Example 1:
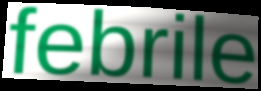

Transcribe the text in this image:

febrile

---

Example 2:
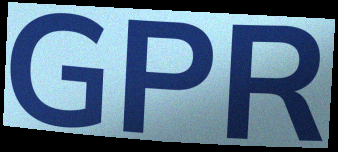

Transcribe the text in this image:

GPR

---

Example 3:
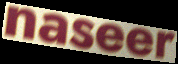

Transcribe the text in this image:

naseer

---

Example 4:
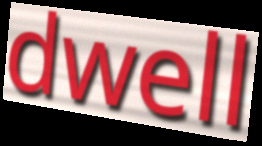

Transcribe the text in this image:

dwell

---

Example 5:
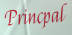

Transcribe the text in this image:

Princpal